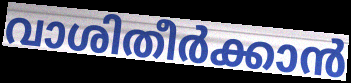
വാശിതീർക്കാൻ